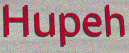
Hupeh